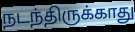
நடந்திருக்காது